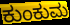
ಕುಂಕುಮ